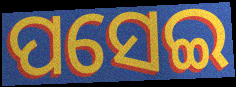
ପସେଇ